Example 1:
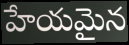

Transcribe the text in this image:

హేయమైన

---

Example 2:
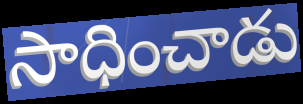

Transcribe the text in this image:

సాధించాడు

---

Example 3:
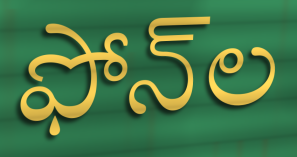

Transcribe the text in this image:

ఫోన్‌ల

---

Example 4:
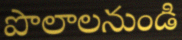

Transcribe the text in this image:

పొలాలనుండి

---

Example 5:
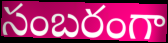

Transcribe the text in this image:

సంబరంగా